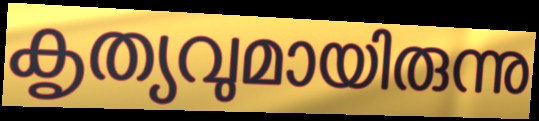
കൃത്യവുമായിരുന്നു